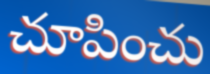
చూపించు